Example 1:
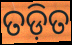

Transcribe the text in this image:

ତଡ଼ିତ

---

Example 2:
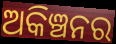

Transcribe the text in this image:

ଅକିଞ୍ଚନର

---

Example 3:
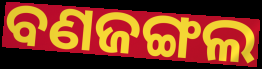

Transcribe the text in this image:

ବଣଜଙ୍ଗଲ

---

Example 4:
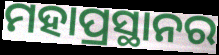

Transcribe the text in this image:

ମହାପ୍ରସ୍ଥାନର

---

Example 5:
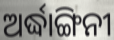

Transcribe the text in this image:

ଅର୍ଦ୍ଧାଙ୍ଗିନୀ